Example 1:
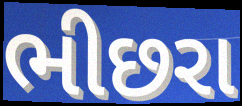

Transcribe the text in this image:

ભીછરા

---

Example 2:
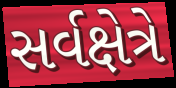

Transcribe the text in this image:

સર્વક્ષેત્રે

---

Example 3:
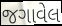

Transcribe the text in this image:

જગાવેલ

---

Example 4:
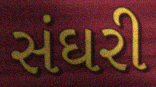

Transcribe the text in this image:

સંઘરી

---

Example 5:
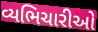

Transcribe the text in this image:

વ્યભિચારીઓ